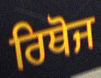
ਰਿਥੋਜ